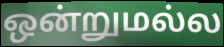
ஒன்றுமல்ல